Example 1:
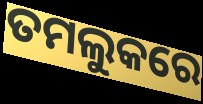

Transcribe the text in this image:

ତମଲୁକରେ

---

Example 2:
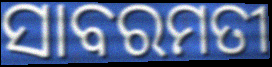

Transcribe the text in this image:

ସାବରମତୀ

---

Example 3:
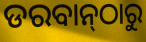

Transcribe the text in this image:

ଡରବାନ୍‌ଠାରୁ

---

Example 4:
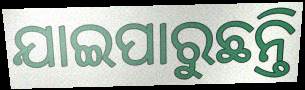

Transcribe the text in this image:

ଯାଇପାରୁଛନ୍ତି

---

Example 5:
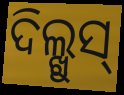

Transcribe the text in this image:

ଦିଲ୍ଖୁସ୍